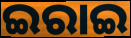
ଇରାଇ